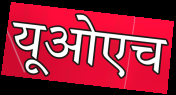
यूओएच